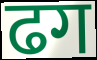
ढग